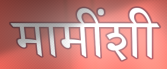
मामींशी